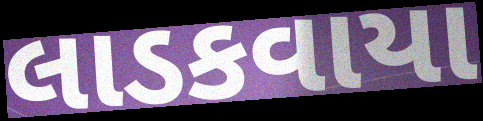
લાડકવાયા